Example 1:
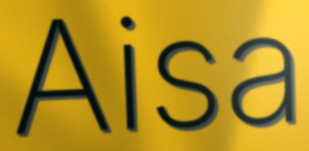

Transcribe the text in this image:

Aisa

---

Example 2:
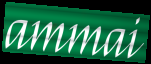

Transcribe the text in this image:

ammai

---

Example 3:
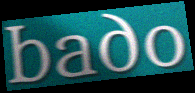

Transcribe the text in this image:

bado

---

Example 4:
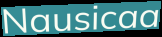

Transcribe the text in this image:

Nausicaa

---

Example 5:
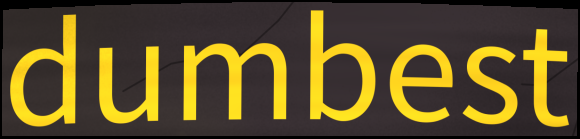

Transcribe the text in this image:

dumbest